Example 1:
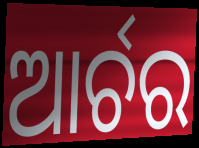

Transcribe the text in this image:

ଆର୍ଚର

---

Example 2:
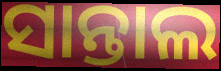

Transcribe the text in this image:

ସାନ୍ତାଲ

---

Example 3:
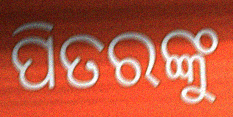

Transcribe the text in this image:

ପିତରଙ୍କୁ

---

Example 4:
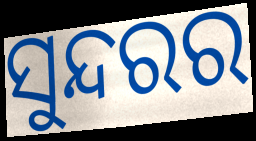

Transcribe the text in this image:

ସୁନ୍ଦରର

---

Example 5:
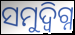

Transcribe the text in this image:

ସମୁଦ୍ବିଗ୍ନ